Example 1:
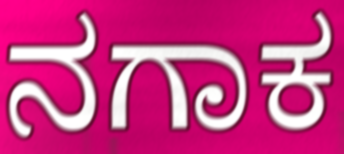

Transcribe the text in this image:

ನಗಾಕ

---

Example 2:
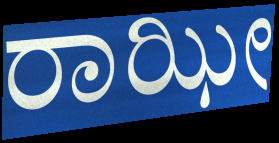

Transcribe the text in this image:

ರಾಝೀ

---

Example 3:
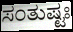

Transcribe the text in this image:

ಸಂತುಷ್ಟಃ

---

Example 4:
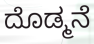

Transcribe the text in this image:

ದೊಡ್ಮನೆ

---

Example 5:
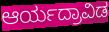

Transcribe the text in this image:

ಆರ್ಯದ್ರಾವಿಡ